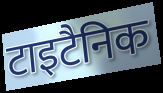
टाइटैनिक